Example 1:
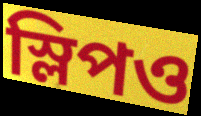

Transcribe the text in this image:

স্লিপও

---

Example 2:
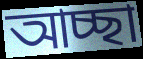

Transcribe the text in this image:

আচ্ছা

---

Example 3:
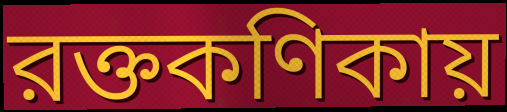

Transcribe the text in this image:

রক্তকণিকায়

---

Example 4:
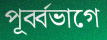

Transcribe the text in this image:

পূর্ব্বভাগে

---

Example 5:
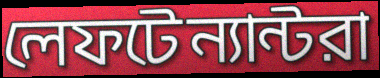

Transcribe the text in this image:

লেফটেন্যান্টরা